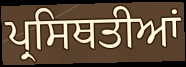
ਪ੍ਰਸਿਥਤੀਆਂ